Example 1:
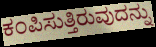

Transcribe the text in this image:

ಕಂಪಿಸುತ್ತಿರುವುದನ್ನು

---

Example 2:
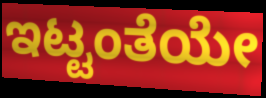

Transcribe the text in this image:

ಇಟ್ಟಂತೆಯೇ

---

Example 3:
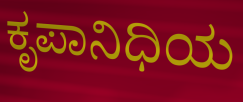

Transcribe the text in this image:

ಕೃಪಾನಿಧಿಯ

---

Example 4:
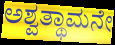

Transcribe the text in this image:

ಅಶ್ವತ್ಥಾಮನೇ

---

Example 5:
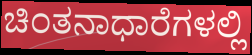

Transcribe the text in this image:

ಚಿಂತನಾಧಾರೆಗಳಲ್ಲಿ